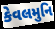
કેવલમુનિ